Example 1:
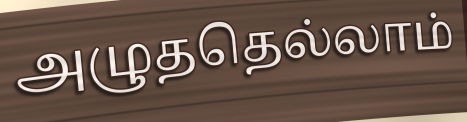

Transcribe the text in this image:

அழுததெல்லாம்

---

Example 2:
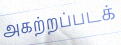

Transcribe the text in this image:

அகற்றப்படக்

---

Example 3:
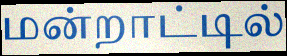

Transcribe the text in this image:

மன்றாட்டில்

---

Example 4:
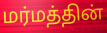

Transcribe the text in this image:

மர்மத்தின்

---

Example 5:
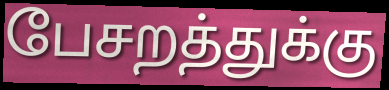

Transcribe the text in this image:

பேசறத்துக்கு